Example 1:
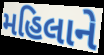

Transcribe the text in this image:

મહિલાને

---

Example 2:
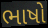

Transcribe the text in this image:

ભાષો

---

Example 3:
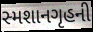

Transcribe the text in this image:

સ્મશાનગૃહની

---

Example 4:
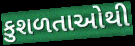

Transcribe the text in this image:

કુશળતાઓથી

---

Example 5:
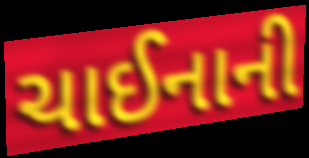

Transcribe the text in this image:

ચાઈનાની